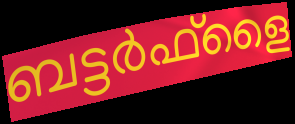
ബട്ടർഫ്ളൈ